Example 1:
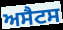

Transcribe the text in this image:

ਅਸੈਟਸ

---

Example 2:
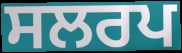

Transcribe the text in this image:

ਸਲਰਪ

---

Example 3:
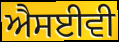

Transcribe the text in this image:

ਐਸਈਵੀ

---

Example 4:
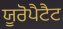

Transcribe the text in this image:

ਯੂਰੋਪੈਟੈਟ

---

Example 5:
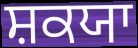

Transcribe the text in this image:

ਸ਼ਕਯਾ